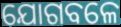
ଯୋଗବଳେ